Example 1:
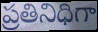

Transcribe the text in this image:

ప్రతినిధిగా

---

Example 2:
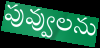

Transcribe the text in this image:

పువ్వులను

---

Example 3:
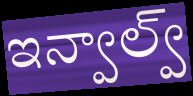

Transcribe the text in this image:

ఇన్వాల్వ్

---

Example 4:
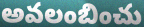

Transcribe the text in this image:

అవలంబించు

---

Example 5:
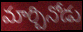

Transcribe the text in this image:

మార్చినోడు